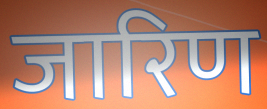
जारिण